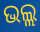
ଭଲ୍ଲ